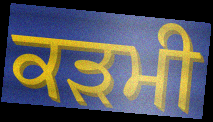
ਕੜਮੀ